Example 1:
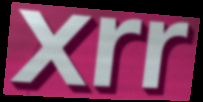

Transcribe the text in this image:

xrr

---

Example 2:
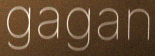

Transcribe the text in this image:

gagan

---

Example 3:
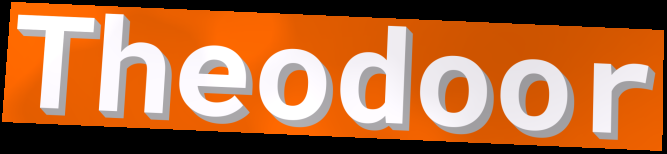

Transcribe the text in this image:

Theodoor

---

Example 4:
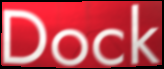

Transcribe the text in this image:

Dock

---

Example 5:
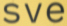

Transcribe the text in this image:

sve